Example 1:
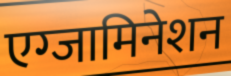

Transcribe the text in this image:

एग्‍जामिनेशन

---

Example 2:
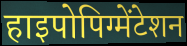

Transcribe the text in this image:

हाइपोपिग्मेंटेशन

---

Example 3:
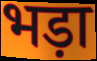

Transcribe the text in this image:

भड़ा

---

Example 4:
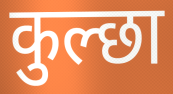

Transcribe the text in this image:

कुल्छा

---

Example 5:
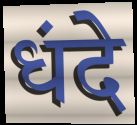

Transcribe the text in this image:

धंदे